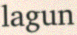
lagun